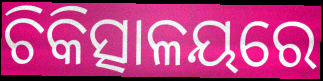
ଚିକିତ୍ସାଳୟରେ